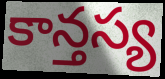
కాన్తస్య